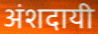
अंशदायी